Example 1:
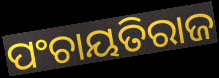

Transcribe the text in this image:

ପଂଚାୟତିରାଜ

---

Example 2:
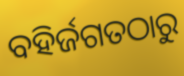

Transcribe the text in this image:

ବହିର୍ଜଗତଠାରୁ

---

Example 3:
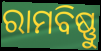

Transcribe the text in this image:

ରାମବିଷ୍ଣୁ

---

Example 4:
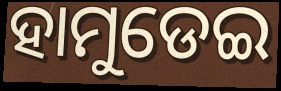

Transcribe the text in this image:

ହାମୁଡେଇ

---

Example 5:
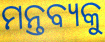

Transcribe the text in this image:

ମନ୍ତବ୍ୟକୁ